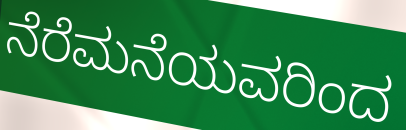
ನೆರೆಮನೆಯವರಿಂದ